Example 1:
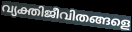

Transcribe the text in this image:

വ്യക്തിജീവിതങ്ങളെ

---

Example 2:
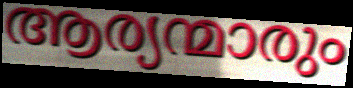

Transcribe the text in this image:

ആര്യന്മാരും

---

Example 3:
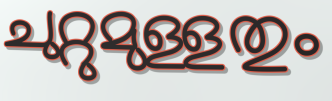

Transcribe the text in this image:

ചുറ്റുമുള്ളതും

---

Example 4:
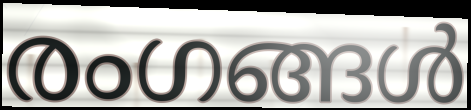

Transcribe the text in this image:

രംഗങ്ങൾ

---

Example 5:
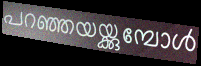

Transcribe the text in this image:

പറഞ്ഞയയ്ക്കുമ്പോൾ